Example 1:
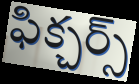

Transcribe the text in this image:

ఫిక్చర్స్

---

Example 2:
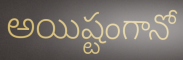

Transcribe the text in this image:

అయిష్టంగానో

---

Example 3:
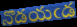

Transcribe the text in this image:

నొడయఁడ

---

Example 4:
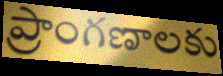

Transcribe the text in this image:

ప్రాంగణాలకు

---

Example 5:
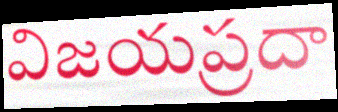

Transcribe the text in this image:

విజయప్రదా